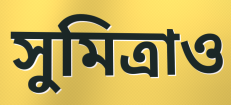
সুমিত্রাও